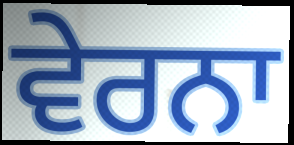
ਵੇਰਨਾ